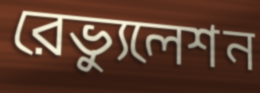
রেভ্যুলেশন